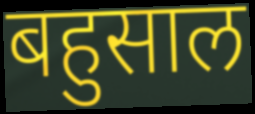
बहुसाल